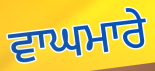
ਵਾਘਮਾਰੇ